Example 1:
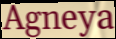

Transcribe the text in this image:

Agneya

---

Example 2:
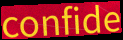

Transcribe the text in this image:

confide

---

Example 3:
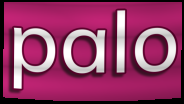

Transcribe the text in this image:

palo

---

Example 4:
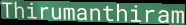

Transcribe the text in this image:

Thirumanthiram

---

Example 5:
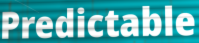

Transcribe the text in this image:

Predictable